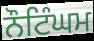
ਨੌਟਿੰਘਮ